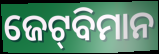
ଜେଟ୍‍ବିମାନ